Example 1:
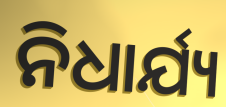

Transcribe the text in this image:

ନିଧାର୍ଯ୍ୟ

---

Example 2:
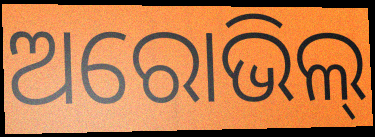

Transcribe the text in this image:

ଅରୋଭିଲ୍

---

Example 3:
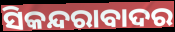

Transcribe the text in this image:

ସିକନ୍ଦରାବାଦର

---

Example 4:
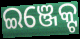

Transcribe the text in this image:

ଇଞ୍ଜେକ୍ଟ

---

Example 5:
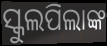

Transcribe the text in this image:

ସ୍କୁଲପିଲାଙ୍କ